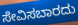
ಸೇವಿಸಬಾರದು